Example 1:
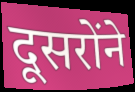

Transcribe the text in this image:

दूसरोंने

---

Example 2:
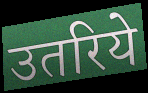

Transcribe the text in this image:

उतरिये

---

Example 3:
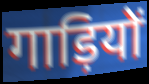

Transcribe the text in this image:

गाड़ियों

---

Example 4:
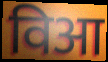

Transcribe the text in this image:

विआ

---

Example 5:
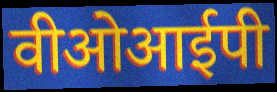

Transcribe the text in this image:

वीओआईपी